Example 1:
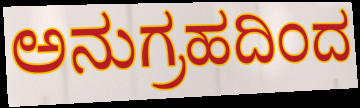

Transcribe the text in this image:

ಅನುಗ್ರಹದಿಂದ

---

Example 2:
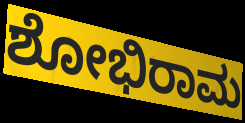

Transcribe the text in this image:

ಶೋಭಿರಾಮ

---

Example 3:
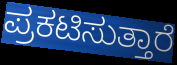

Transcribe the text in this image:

ಪ್ರಕಟಿಸುತ್ತಾರೆ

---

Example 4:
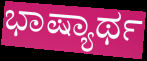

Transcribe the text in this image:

ಭಾಷ್ಯಾರ್ಥ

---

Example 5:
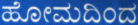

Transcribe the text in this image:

ಹೋಮದಿಂದ